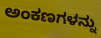
ಅಂಕಣಗಳನ್ನು